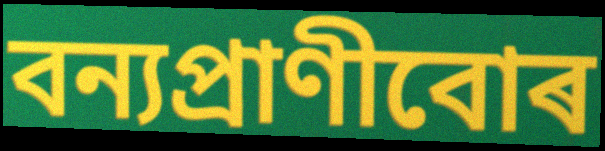
বন্যপ্ৰাণীবোৰ